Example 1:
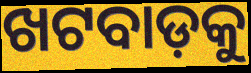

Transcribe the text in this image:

ଖଟବାଡ଼କୁ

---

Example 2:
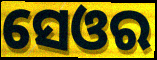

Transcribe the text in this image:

ସେଓର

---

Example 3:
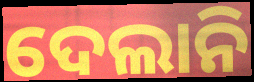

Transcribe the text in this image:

ଦେଲାନି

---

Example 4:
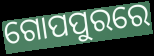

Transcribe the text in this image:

ଗୋପପୁରରେ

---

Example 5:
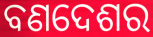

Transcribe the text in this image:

ବଣଦେଶର